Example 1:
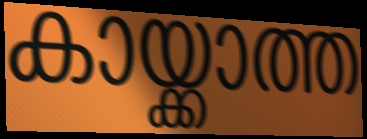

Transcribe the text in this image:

കായ്ക്കാത്ത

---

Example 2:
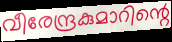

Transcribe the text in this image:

വീരേന്ദ്രകുമാറിന്റെ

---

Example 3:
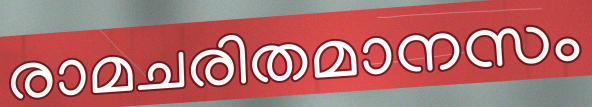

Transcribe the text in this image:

രാമചരിതമാനസം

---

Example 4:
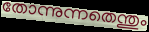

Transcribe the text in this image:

തോന്നുന്നതെന്തും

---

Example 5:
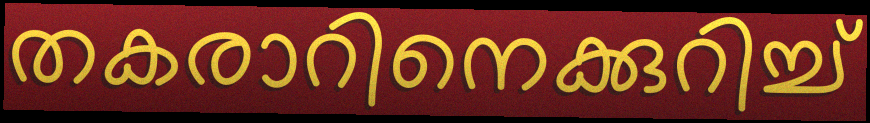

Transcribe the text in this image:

തകരാറിനെക്കുറിച്ച്